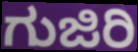
ಗುಜಿರಿ